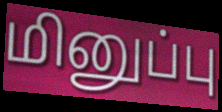
மினுப்பு